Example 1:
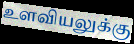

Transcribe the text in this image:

உளவியலுக்கு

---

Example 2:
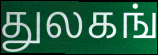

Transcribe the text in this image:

துலகங்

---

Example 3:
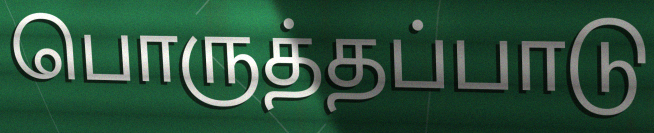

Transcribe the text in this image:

பொருத்தப்பாடு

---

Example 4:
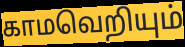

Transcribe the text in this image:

காமவெறியும்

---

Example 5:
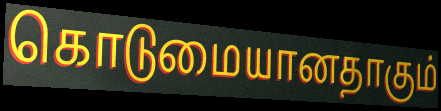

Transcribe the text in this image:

கொடுமையானதாகும்